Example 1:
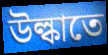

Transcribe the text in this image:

উল্কাতে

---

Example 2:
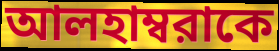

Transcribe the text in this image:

আলহাম্বরাকে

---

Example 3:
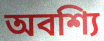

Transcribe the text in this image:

অবশ্যি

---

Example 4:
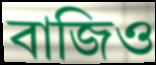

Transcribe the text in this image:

বাজিও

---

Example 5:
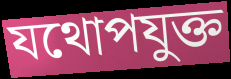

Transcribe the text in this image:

যথোপযুক্ত